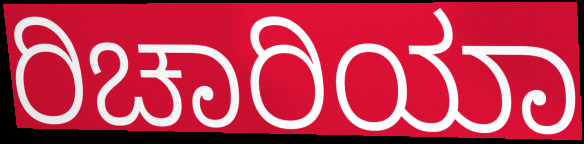
ರಿಚಾರಿಯಾ